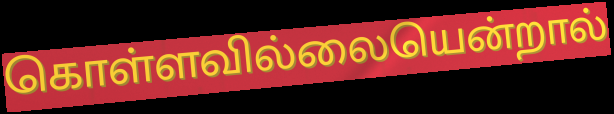
கொள்ளவில்லையென்றால்